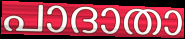
പാദാതാ